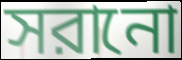
সরানো